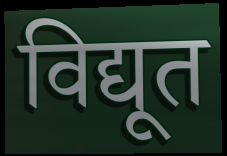
विद्यूत